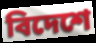
বিদেশে